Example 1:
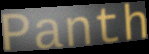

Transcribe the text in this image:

Panth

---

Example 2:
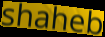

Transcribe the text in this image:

shaheb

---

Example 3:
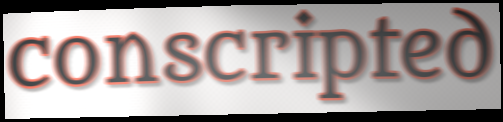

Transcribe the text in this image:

conscripted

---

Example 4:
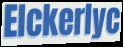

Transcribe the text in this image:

Elckerlyc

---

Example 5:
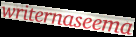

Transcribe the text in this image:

writernaseema